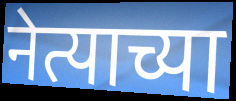
नेत्याच्या